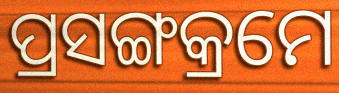
ପ୍ରସଙ୍ଗକ୍ରମେ